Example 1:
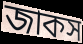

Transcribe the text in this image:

জাকস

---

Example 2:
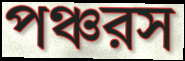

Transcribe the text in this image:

পঞ্চরস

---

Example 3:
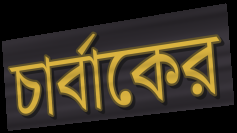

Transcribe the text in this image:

চার্বাকের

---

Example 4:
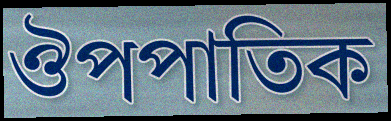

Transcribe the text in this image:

ঔপপাতিক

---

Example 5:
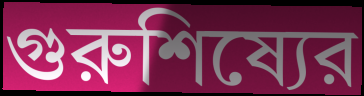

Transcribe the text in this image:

গুরুশিষ্যের